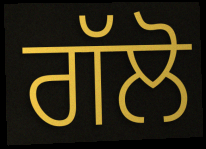
ਗੱਲੋ